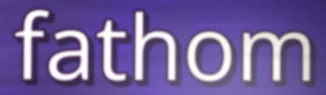
fathom